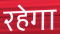
रहेगा